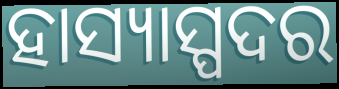
ହାସ୍ୟାସ୍ପଦର